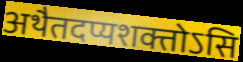
अथैतदप्यशक्तोऽसि